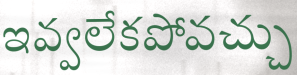
ఇవ్వలేకపోవచ్చు